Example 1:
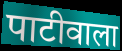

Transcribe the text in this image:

पाटीवाला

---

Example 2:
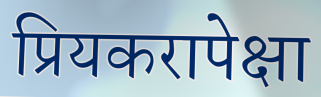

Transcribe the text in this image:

प्रियकरापेक्षा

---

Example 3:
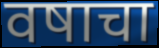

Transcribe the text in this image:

वषाचा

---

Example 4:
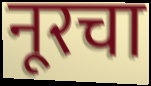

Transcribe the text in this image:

नूरचा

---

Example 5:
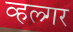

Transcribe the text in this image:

व्हल्गर